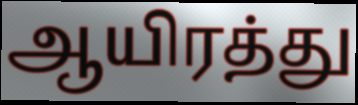
ஆயிரத்து